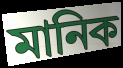
মানিক